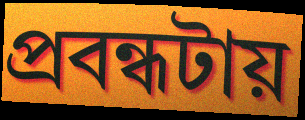
প্রবন্ধটায়